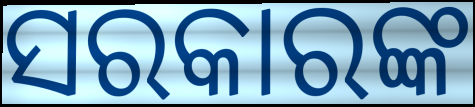
ସରକାରଙ୍କ